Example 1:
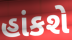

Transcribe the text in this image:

હાંકશે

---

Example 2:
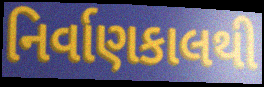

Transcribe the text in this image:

નિર્વાણકાલથી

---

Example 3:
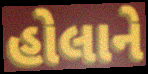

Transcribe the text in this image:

હોલાને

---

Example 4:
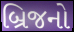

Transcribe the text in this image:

બ્રિજનો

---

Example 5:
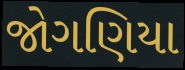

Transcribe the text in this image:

જોગણિયા